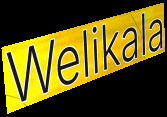
Welikala